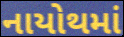
નાયોથમાં